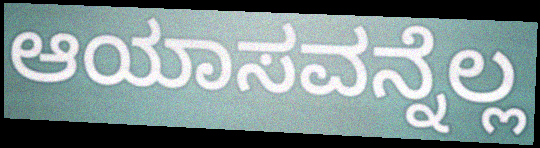
ಆಯಾಸವನ್ನೆಲ್ಲ